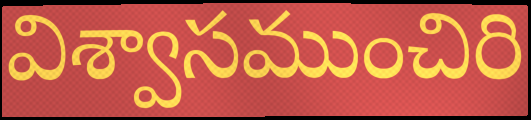
విశ్వాసముంచిరి